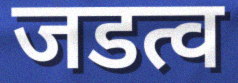
जडत्व